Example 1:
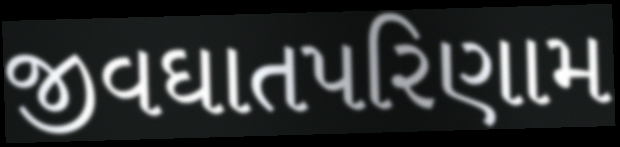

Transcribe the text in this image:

જીવઘાતપરિણામ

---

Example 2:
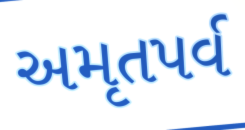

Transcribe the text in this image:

અમૃતપર્વ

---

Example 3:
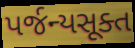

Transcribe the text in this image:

પર્જન્યસૂક્ત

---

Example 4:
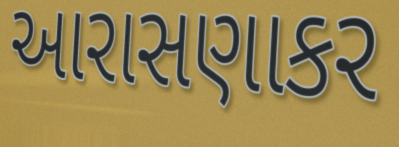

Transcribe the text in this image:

આરાસણાકર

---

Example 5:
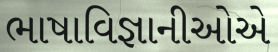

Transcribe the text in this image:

ભાષાવિજ્ઞાનીઓએ